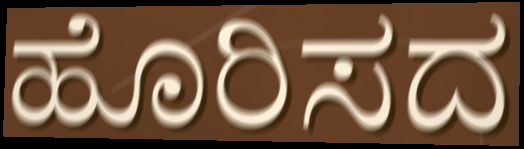
ಹೊರಿಸದ